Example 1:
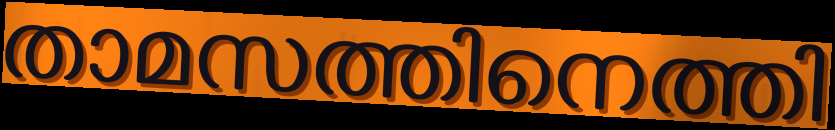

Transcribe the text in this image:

താമസത്തിനെത്തി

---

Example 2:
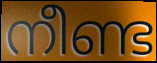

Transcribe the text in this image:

നീണ്ട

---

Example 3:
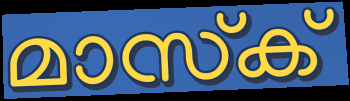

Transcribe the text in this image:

മാസ്‌ക്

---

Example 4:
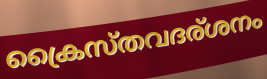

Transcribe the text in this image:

ക്രൈസ്തവദര്ശനം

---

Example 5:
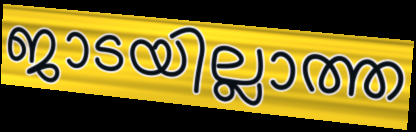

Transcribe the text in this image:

ജാടയില്ലാത്ത